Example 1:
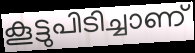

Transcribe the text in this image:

കൂട്ടുപിടിച്ചാണ്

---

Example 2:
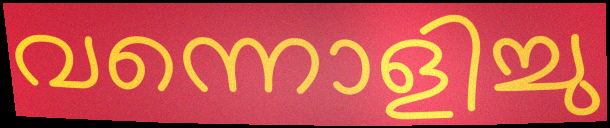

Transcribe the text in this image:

വന്നൊളിച്ചു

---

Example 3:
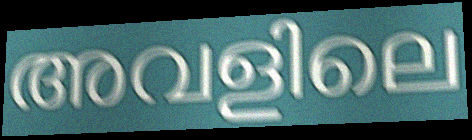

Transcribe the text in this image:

അവളിലെ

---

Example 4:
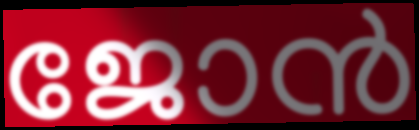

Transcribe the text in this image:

ജോൻ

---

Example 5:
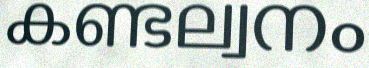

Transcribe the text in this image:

കണ്ടല്വനം